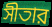
সীতার